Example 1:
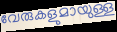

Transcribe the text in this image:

വേരുകളുമായുള്ള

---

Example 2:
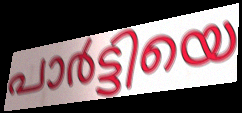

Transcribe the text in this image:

പാർട്ടിയെ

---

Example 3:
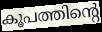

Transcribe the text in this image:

കൂപത്തിന്റെ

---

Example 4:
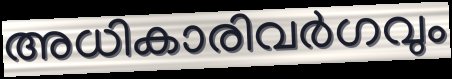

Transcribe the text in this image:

അധികാരിവർഗവും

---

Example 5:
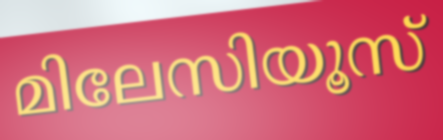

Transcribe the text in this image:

മിലേസിയൂസ്